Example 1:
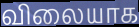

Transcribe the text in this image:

விலையாக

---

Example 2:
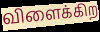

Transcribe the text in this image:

விளைக்கிற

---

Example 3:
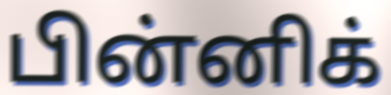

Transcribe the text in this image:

பின்னிக்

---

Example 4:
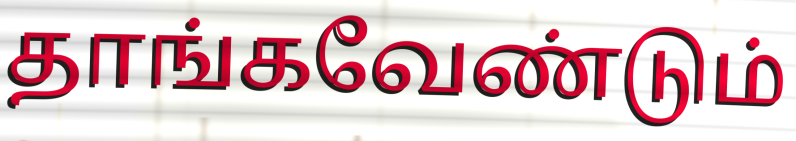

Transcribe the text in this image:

தாங்கவேண்டும்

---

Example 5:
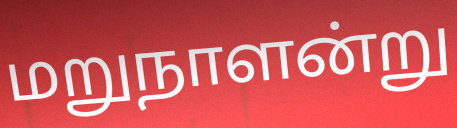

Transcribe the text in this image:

மறுநாளன்று